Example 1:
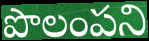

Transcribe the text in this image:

పొలంపని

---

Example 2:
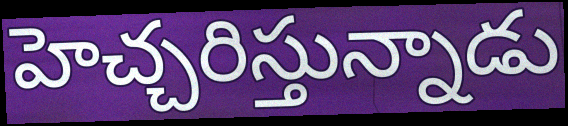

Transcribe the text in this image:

హెచ్చరిస్తున్నాడు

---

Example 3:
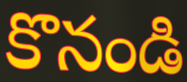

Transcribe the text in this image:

కొనండి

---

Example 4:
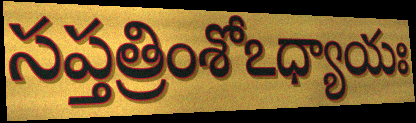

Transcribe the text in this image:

సప్తత్రింశోఽధ్యాయః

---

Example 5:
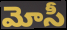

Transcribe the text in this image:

మోసీ